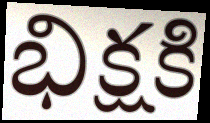
భిక్షకి